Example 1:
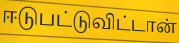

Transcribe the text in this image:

ஈடுபட்டுவிட்டான்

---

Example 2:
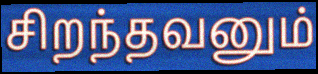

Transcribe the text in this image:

சிறந்தவனும்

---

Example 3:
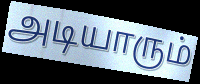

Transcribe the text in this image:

அடியாரும்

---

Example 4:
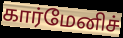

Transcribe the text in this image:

கார்மேனிச்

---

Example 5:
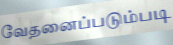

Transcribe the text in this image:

வேதனைப்படும்படி